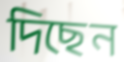
দিছেন